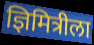
ज्ञिमित्रीला